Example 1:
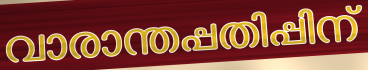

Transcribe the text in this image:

വാരാന്തപ്പതിപ്പിന്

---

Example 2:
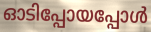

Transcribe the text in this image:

ഓടിപ്പോയപ്പോൾ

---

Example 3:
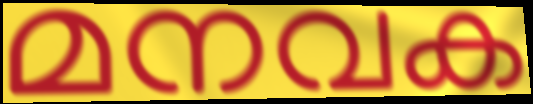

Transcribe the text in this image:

മനവക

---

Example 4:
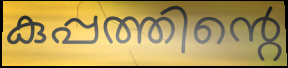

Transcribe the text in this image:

കുപ്പത്തിന്റെ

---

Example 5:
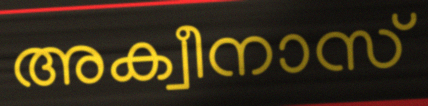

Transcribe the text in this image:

അക്വീനാസ്